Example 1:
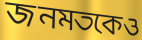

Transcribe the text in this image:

জনমতকেও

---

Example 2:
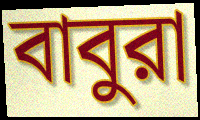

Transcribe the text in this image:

বাবুরা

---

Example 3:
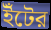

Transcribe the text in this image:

ইঁটের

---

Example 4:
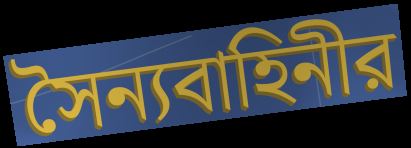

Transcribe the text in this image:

সৈন্যবাহিনীর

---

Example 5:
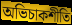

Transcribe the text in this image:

অভিচাকশীতি